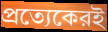
প্রত্যেকেরই